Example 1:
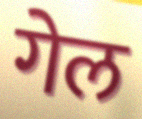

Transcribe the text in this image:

गेल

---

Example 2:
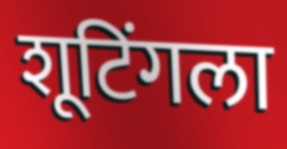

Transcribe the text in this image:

शूटिंगला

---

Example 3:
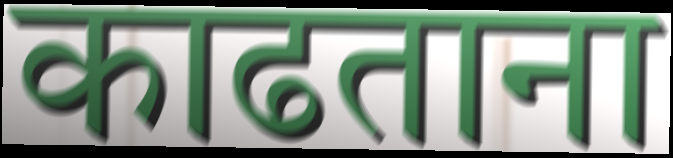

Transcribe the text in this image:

काढताना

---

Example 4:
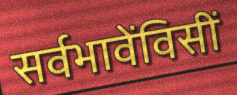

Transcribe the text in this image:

सर्वभावेंविसीं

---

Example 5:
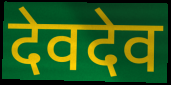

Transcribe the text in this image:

देवदेव